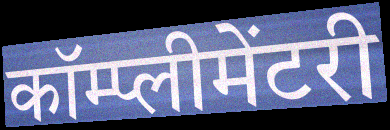
कॉम्प्लीमेंटरी